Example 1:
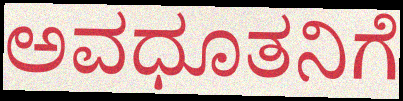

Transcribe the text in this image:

ಅವಧೂತನಿಗೆ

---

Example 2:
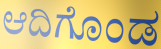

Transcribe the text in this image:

ಆದಿಗೊಂಡ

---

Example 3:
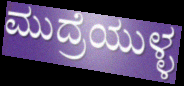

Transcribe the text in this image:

ಮುದ್ರೆಯುಳ್ಳ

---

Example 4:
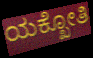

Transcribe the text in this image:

ಯಕ್ಖೋತಿ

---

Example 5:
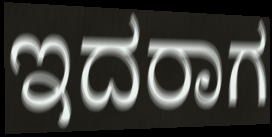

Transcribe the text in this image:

ಇದರಾಗ